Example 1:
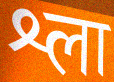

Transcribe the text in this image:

श्ला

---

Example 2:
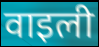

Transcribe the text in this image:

वाइली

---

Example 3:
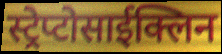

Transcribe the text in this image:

स्ट्रेप्टोसाईक्लिन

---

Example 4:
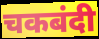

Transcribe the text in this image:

चकबंदी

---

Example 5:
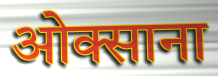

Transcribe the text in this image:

ओक्साना